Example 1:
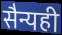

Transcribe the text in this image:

सैन्यही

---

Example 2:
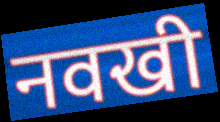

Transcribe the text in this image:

नवखी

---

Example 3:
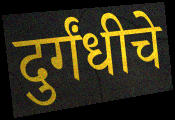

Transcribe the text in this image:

दुर्गंधीचे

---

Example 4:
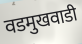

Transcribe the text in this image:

वडमुखवाडी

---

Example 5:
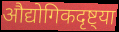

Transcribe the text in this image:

औद्योगिकदृष्ट्या